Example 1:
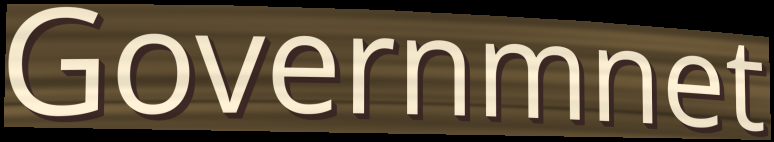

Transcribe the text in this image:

Governmnet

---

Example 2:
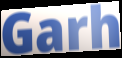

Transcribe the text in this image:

Garh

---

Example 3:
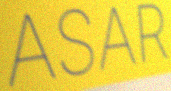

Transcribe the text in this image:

ASAR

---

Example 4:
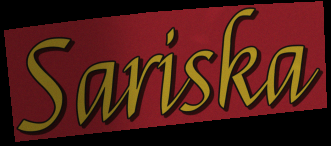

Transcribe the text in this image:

Sariska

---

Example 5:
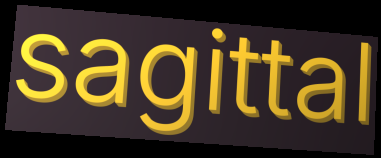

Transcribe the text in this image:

sagittal